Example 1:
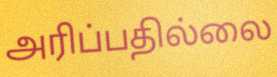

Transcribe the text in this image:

அரிப்பதில்லை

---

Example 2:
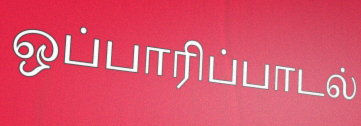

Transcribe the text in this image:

ஒப்பாரிப்பாடல்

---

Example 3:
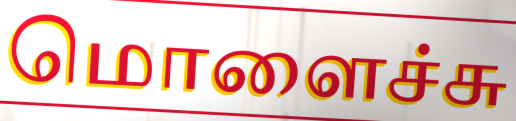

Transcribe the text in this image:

மொளைச்சு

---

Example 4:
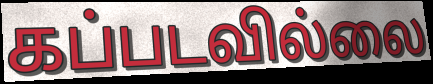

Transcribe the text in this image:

கப்படவில்லை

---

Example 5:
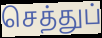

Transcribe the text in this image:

செத்துப்